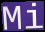
Mi